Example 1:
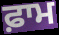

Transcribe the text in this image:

ਫ਼ਾਮ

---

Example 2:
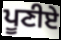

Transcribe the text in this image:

ਪੂਣੀਏ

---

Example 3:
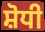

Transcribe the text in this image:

ਸ਼ੋਧੀ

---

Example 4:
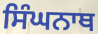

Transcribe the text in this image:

ਸਿੰਘਨਾਥ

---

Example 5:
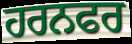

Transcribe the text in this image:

ਹਰਨਫਰ